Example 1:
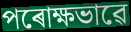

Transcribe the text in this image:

পৰোক্ষভাৱে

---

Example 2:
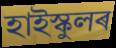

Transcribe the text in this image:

হাইস্কুলৰ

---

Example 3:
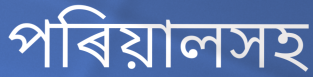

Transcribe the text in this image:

পৰিয়ালসহ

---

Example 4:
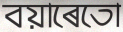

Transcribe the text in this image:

বয়াৰেতো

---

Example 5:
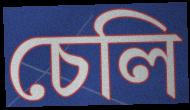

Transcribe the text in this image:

চেলি